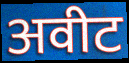
अवीट